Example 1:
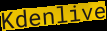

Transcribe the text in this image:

Kdenlive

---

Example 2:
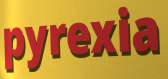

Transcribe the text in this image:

pyrexia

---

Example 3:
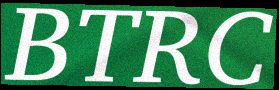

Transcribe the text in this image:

BTRC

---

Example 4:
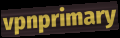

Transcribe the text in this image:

vpnprimary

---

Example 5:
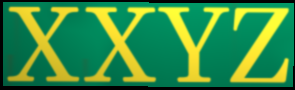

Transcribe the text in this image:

XXYZ